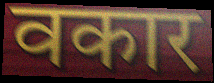
वकार